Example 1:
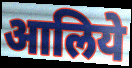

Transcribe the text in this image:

आलिये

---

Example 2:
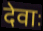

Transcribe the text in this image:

देवाः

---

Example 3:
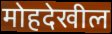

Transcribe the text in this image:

मोहदेखील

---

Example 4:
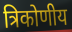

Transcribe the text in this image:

त्रिकोणीय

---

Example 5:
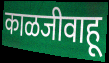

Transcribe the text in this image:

काळजीवाहू